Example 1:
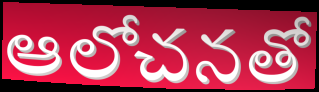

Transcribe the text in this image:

ఆలోచనతో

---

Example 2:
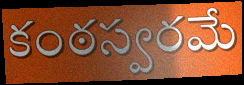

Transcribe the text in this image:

కంఠస్వరమే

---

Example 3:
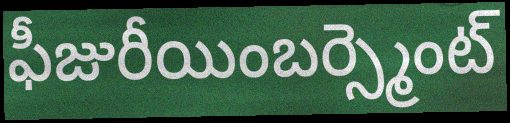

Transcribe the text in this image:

ఫీజురీయింబర్స్మెంట్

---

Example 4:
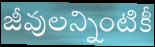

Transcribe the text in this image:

జీవులన్నింటికీ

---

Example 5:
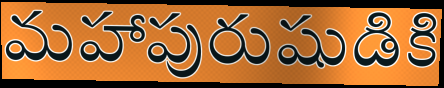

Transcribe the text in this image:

మహాపురుషుడికి